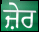
ਜ਼ੇਰ